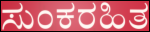
ಸುಂಕರಹಿತ